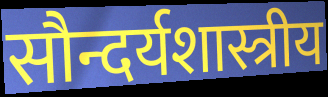
सौन्दर्यशास्त्रीय